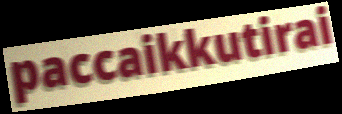
paccaikkutirai